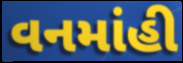
વનમાંહી